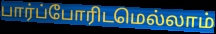
பார்ப்போரிடமெல்லாம்